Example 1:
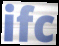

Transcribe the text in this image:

ifc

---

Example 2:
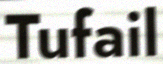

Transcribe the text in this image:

Tufail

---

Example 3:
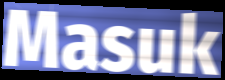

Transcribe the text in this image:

Masuk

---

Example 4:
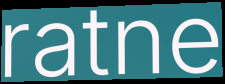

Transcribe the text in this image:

ratne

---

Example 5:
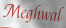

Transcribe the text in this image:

Meghwal